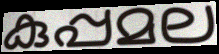
കുപ്പമല